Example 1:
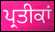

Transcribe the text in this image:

ਪ੍ਰਤੀਕਾਂ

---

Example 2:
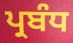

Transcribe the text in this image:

ਪ੍ਰਬੰਧ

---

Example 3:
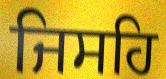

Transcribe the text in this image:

ਜਿਸਹਿ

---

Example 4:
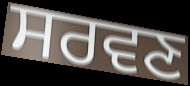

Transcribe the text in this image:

ਸਰਵਣ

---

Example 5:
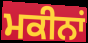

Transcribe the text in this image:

ਮਕੀਨਾਂ